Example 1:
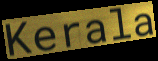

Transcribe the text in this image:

Kerala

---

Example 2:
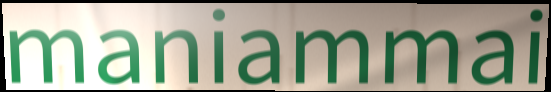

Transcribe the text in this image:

maniammai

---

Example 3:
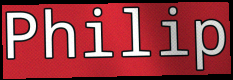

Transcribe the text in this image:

Philip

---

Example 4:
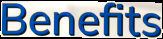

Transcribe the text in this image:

Benefits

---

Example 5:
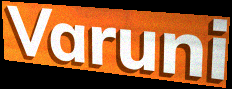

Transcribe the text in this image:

Varuni